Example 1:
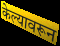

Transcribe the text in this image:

केल्यावरून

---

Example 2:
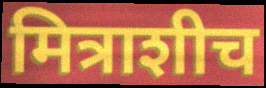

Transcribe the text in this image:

मित्राशीच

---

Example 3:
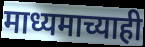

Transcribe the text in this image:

माध्यमाच्याही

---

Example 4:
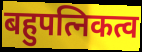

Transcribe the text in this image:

बहुपत्निकत्व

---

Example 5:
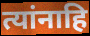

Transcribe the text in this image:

त्यांनाहि